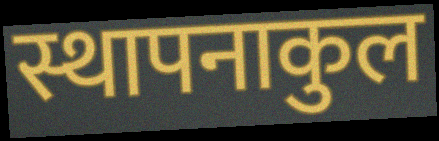
स्थापनाकुल